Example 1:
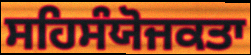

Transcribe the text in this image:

ਸਹਿਸੰਯੋਜਕਤਾ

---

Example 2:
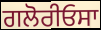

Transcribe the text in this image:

ਗਲੋਰੀਓਸਾ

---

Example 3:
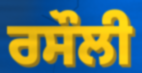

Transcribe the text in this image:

ਰਸੌਲੀ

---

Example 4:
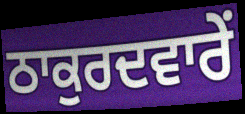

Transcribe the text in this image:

ਠਾਕੁਰਦਵਾਰੇਂ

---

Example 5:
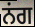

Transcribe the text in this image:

ਨਂਗ